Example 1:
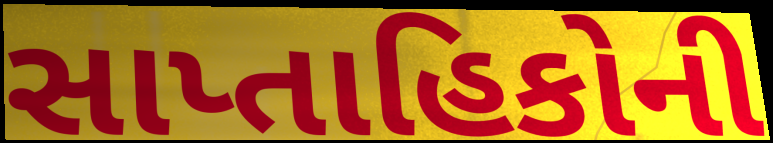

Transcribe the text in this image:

સાપ્તાહિકોની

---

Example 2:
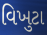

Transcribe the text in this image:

વિખુટા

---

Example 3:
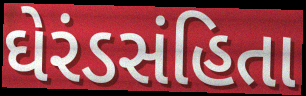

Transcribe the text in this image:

ઘેરંડસંહિતા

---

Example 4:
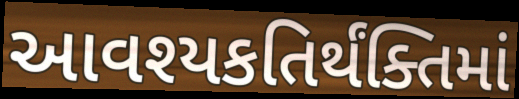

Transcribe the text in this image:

આવશ્યકતિર્થંક્તિમાં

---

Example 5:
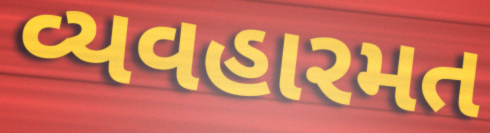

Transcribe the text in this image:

વ્યવહારમત